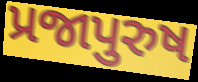
પ્રજાપુરુષ